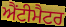
ਐਂਟੀਮੈਟਰ